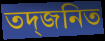
তদ্জনিত